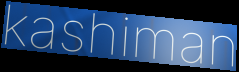
kashiman